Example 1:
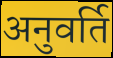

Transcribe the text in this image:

अनुवर्ति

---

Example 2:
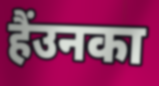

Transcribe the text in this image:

हैंउनका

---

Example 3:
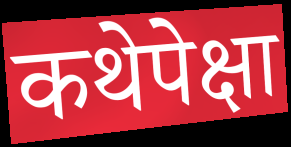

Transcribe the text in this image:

कथेपेक्षा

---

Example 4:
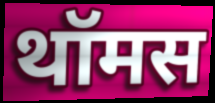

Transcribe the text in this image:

थॉमस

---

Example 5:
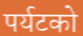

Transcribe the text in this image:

पर्यटको